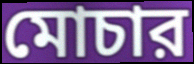
মোচার